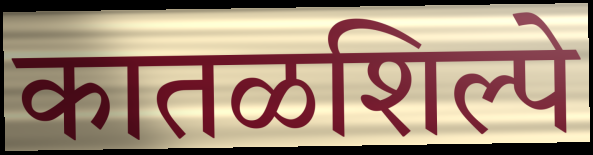
कातळशिल्पे